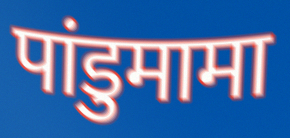
पांडुमामा